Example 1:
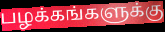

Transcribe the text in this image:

பழக்கங்களுக்கு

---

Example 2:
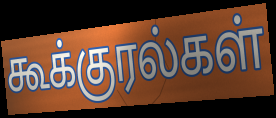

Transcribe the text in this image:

கூக்குரல்கள்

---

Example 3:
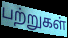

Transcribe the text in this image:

பற்றுகள்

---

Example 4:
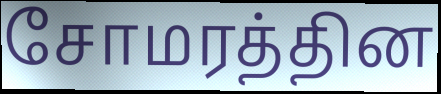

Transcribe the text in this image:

சோமரத்தின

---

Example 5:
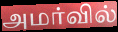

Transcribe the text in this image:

அமர்வில்